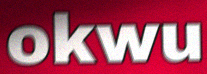
okwu